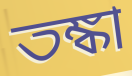
তঙ্কা